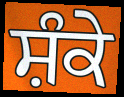
ਸ਼ੰਕੇ